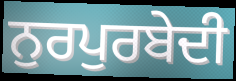
ਨੁਰਪੁਰਬੇਦੀ